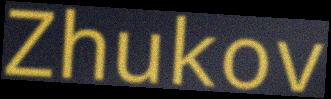
Zhukov